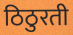
ठिठुरती